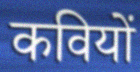
कवियों